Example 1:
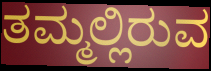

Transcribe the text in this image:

ತಮ್ಮಲ್ಲಿರುವ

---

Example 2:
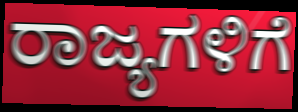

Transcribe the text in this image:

ರಾಜ್ಯಗಳಿಗೆ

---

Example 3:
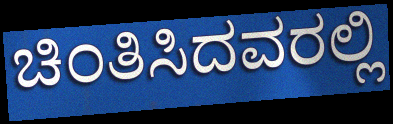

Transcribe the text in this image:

ಚಿಂತಿಸಿದವರಲ್ಲಿ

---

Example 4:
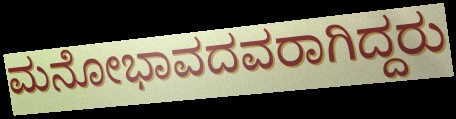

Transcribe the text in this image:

ಮನೋಭಾವದವರಾಗಿದ್ದರು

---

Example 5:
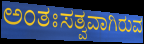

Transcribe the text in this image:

ಅಂತಃಸತ್ವವಾಗಿರುವ